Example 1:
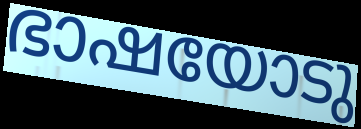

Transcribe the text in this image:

ഭാഷയോടു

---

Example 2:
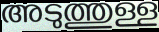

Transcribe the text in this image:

അടുത്തുള്ള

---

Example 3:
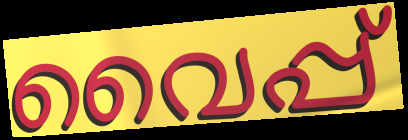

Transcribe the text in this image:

വൈപ്പ്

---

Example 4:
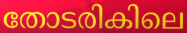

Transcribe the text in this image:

തോടരികിലെ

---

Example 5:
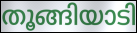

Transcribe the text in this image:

തൂങ്ങിയാടി